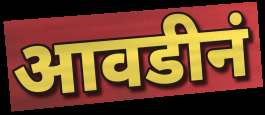
आवडीनं